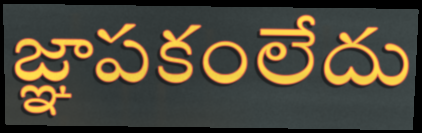
జ్ఞాపకంలేదు